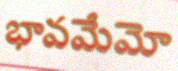
భావమేమో